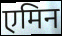
एमिन